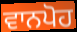
ਵਾਨਪੋਹ